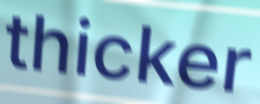
thicker